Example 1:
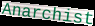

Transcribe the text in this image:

Anarchist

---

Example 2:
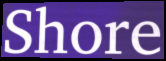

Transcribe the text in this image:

Shore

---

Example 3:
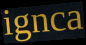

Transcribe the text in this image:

ignca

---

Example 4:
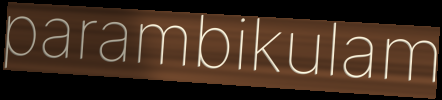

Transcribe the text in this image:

parambikulam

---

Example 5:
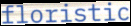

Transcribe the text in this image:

floristic